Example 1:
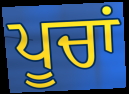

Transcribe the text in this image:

ਪੂਚਾਂ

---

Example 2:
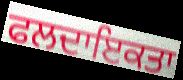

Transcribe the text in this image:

ਫਲਦਾਇਕਤਾ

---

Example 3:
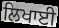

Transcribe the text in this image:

ਲਿਖਾਈ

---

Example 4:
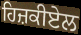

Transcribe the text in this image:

ਹਿਜ਼ਕੀਏਲ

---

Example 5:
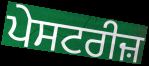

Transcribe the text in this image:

ਪੇਸਟਰੀਜ਼